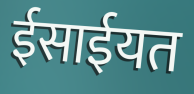
ईसाईयत